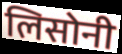
लिसोनी